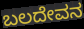
ಬಲದೇವನ